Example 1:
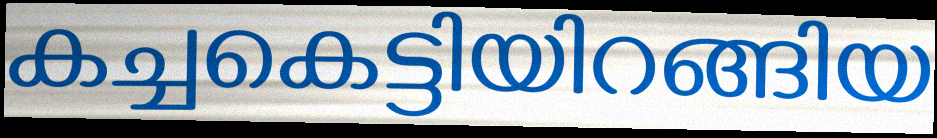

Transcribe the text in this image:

കച്ചകെട്ടിയിറങ്ങിയ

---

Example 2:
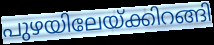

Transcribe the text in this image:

പുഴയിലേയ്ക്കിറങ്ങി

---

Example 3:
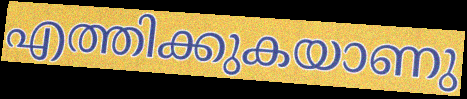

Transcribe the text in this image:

എത്തിക്കുകയാണു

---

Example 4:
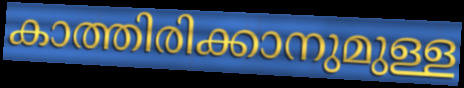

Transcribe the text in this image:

കാത്തിരിക്കാനുമുള്ള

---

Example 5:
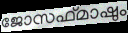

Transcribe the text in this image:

ജോസഫ്മാഷും